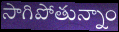
సాగిపోతున్నాం